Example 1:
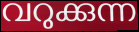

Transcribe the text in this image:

വറുക്കുന്ന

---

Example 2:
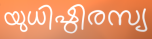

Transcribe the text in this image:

യുധിഷ്ഠിരസ്യ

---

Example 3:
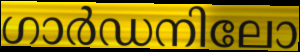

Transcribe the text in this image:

ഗാർഡനിലോ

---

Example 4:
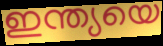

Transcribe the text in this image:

ഇന്ത്യയെ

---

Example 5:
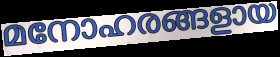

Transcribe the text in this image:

മനോഹരങ്ങളായ